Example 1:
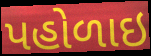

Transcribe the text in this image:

પહોળાઇ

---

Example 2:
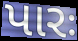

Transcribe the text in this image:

પારઃ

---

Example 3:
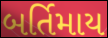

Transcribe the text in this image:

બર્તિમાય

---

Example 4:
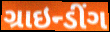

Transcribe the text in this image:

ગ્રાઇન્ડીંગ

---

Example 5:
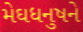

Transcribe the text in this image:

મેઘધનુષને